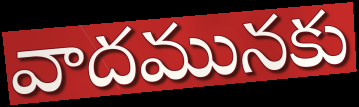
వాదమునకు